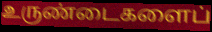
உருண்டைகளைப்